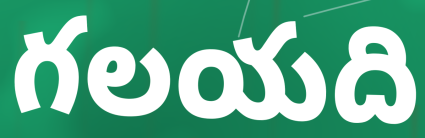
గలయది